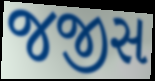
જજીસ